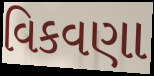
વિકવણા